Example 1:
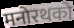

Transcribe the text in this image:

मनोरथको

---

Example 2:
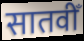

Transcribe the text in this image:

सातवीँ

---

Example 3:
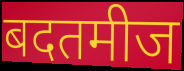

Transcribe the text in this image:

बदतमीज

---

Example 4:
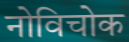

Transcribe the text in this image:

नोविचोक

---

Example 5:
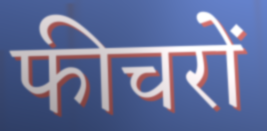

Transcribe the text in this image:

फीचरों